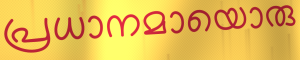
പ്രധാനമായൊരു